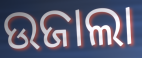
ଉଜାଲା